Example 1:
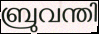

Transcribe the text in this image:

ബ്രുവന്തി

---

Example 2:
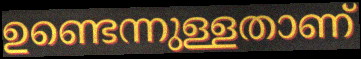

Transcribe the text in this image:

ഉണ്ടെന്നുള്ളതാണ്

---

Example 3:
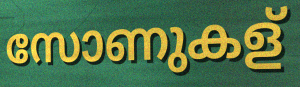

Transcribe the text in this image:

സോണുകള്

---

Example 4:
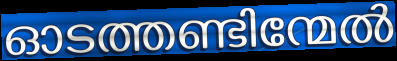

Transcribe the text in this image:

ഓടത്തണ്ടിന്മേൽ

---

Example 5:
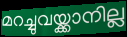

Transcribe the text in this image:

മറച്ചുവയ്ക്കാനില്ല